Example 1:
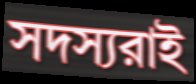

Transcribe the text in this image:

সদস্যরাই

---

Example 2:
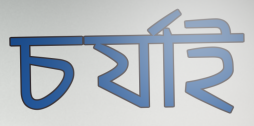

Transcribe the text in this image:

চর্যাই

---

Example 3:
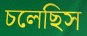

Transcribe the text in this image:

চলেছিস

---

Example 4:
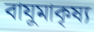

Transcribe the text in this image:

বাযুমাকৃষ্য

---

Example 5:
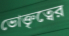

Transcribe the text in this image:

ভোক্তৃত্বের